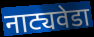
नाट्यवेडा